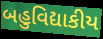
બહુવિદ્યાકીય